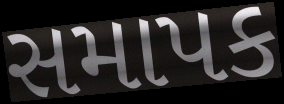
સમાપક